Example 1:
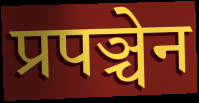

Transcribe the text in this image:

प्रपञ्चेन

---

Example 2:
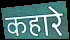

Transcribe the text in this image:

कहारे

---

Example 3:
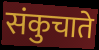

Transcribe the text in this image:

संकुचाते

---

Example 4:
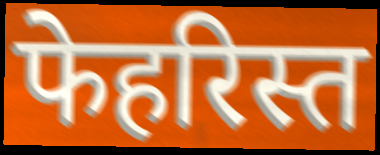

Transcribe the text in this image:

फेहरिस्त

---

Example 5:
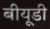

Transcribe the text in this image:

बीयूडी